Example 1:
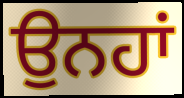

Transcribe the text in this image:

ਉਨਹਾਂ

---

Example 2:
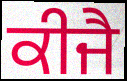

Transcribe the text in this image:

ਕੀਜੈ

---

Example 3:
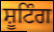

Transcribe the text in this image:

ਸ਼ੂਟਿੰਗ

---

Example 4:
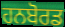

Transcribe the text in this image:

ਹਨਬੋਰਡ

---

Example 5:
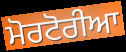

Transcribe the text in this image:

ਮੋਰਟੋਰੀਆ